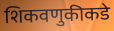
शिकवणुकीकडे